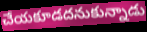
చేయకూడదనుకున్నాడు